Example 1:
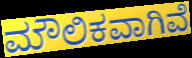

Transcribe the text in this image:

ಮೌಲಿಕವಾಗಿವೆ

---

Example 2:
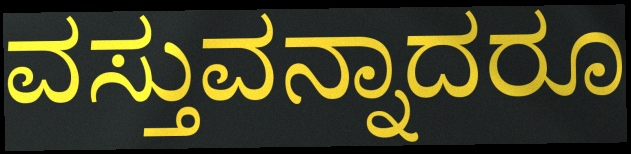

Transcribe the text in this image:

ವಸ್ತುವನ್ನಾದರೂ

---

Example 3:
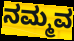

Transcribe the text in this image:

ನಮ್ಮವ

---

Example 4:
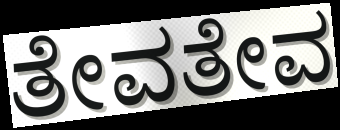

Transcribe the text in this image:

ತೇವತೇವ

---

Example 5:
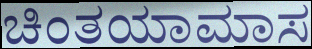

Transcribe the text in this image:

ಚಿಂತಯಾಮಾಸ